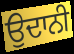
ਉਦਾਨੀ